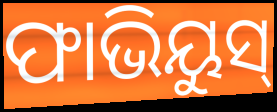
ଫାଭିୟୁସ୍